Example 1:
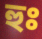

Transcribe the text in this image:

হুঃ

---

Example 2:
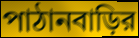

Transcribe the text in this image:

পাঠানবাড়ির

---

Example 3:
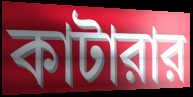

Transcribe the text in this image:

কাটারার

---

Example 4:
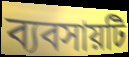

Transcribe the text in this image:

ব্যবসায়টি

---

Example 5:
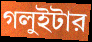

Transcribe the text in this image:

গলুইটার